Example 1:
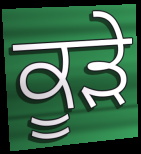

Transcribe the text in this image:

ਕੂੜੇ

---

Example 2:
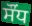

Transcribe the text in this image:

ਸੌਂਧ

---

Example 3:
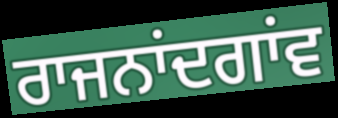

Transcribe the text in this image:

ਰਾਜਨਾਂਦਗਾਂਵ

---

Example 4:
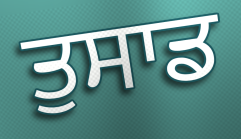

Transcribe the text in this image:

ਤੁਸਾਡ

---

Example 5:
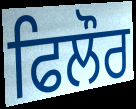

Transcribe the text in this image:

ਫਿਲੌਰ